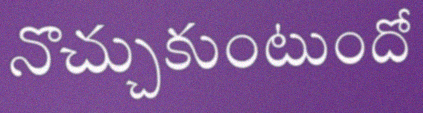
నొచ్చుకుంటుందో